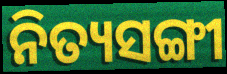
ନିତ୍ୟସଙ୍ଗୀ